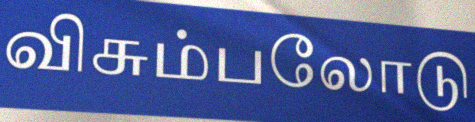
விசும்பலோடு